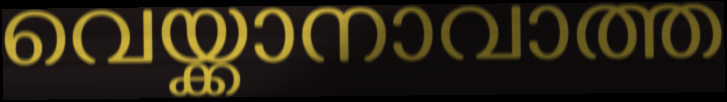
വെയ്ക്കാനാവാത്ത